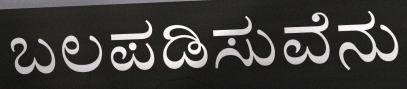
ಬಲಪಡಿಸುವೆನು